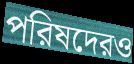
পরিষদেরও